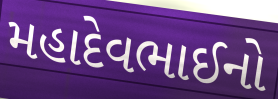
મહાદેવભાઈનો